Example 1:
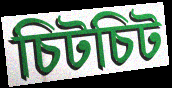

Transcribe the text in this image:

চিটচিট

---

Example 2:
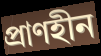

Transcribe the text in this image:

প্রাণহীন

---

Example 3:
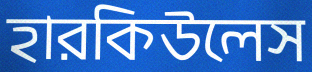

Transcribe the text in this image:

হারকিউলেস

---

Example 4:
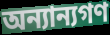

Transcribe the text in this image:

অন্যান্যগণ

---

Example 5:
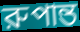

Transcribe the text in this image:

রুপান্ত